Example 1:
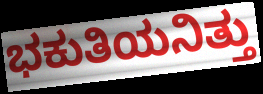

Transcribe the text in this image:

ಭಕುತಿಯನಿತ್ತು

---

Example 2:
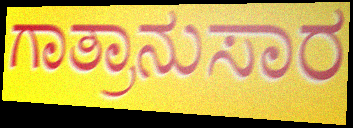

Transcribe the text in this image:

ಗಾತ್ರಾನುಸಾರ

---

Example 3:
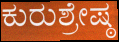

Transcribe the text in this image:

ಕುರುಶ್ರೇಷ್ಠ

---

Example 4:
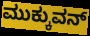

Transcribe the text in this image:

ಮುಕ್ಕುವನ್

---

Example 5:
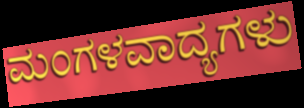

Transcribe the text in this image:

ಮಂಗಳವಾದ್ಯಗಳು